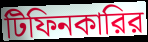
টিফিনকারির